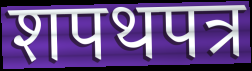
शपथपत्र